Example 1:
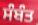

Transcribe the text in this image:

ਸੰਬੰਤ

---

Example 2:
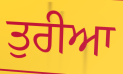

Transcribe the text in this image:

ਤੁਰੀਆ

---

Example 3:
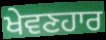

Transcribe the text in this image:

ਖੇਵਣਹਾਰ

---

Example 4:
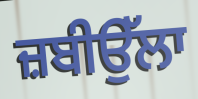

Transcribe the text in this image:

ਜ਼ਬੀਉੱਲਾ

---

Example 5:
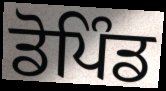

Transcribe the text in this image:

ਡੋਪਿੰਡ